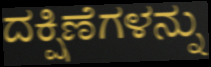
ದಕ್ಷಿಣೆಗಳನ್ನು